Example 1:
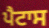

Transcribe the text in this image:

ਪੈਟਾਸ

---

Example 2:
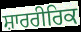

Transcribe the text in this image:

ਸ਼ਾਰਰੀਰਿਕ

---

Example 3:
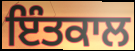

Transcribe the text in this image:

ਇੰਤਕਾਲ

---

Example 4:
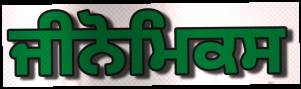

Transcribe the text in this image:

ਜੀਨੋਮਿਕਸ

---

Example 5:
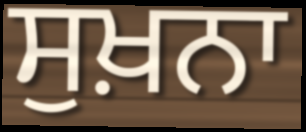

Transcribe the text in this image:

ਸੁਖ਼ਨਾ